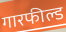
गारफील्ड